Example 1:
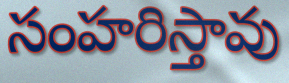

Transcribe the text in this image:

సంహరిస్తావు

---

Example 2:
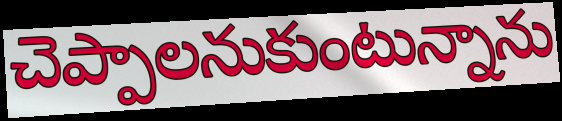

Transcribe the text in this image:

చెప్పాలనుకుంటున్నాను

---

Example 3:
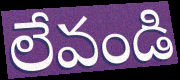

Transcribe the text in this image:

లేవండి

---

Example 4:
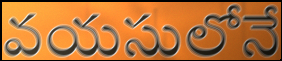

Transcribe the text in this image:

వయసులోనే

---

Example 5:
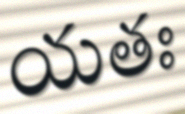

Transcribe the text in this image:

యతః